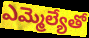
ఎమ్మెల్యేతో